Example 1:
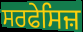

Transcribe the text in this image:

ਸਰਫੇਸਿਜ਼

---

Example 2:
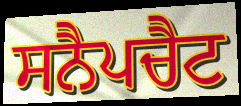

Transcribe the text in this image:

ਸਨੈਪਚੈਟ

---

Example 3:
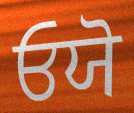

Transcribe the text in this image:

ਓਯੋ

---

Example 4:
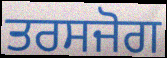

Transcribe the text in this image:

ਤਰਸਜੋਗ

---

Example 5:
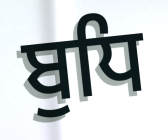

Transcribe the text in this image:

ਬੁਧਿ